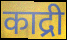
काद्री